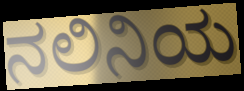
ನಲಿನಿಯ